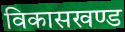
विकासखण्‍ड